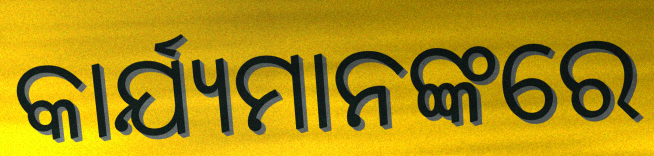
କାର୍ଯ୍ୟମାନଙ୍କରେ